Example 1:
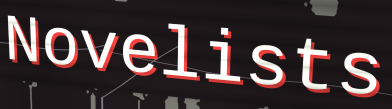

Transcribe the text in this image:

Novelists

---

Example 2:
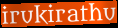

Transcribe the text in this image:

irukirathu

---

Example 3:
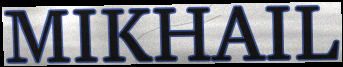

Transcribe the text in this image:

MIKHAIL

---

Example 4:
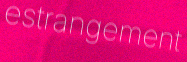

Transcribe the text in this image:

estrangement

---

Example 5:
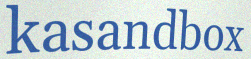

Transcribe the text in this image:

kasandbox